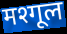
मश्गूल